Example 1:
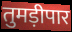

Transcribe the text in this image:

तुमड़ीपार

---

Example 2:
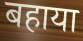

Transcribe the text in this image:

बहाया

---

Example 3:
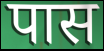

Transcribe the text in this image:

पास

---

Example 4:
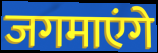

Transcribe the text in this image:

जगमाएंगे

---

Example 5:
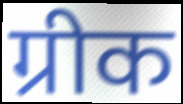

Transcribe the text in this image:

ग्रीक